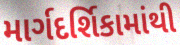
માર્ગદર્શિકામાંથી